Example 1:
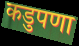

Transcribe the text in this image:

कडुपणा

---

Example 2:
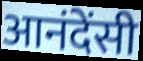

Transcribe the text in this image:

आनंदेंसी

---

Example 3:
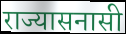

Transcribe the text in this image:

राज्यासनासी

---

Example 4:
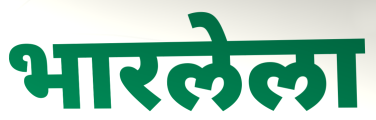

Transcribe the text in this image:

भारलेला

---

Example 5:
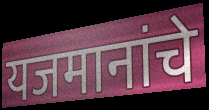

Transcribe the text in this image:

यजमानांचे